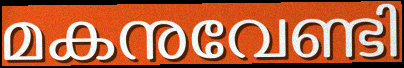
മകനുവേണ്ടി